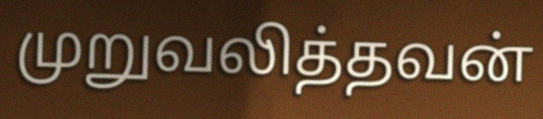
முறுவலித்தவன்